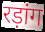
रड़ांग